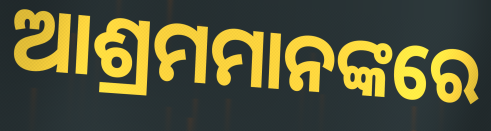
ଆଶ୍ରମମାନଙ୍କରେ